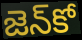
జెన్‌కో